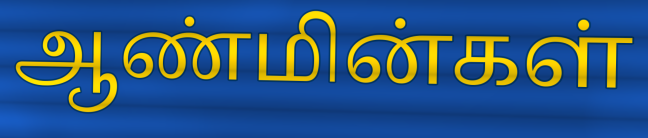
ஆண்மின்கள்